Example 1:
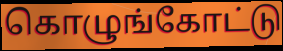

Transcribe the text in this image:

கொழுங்கோட்டு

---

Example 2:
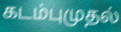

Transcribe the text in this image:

கடம்புமுதல்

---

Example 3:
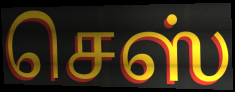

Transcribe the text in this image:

செஸ்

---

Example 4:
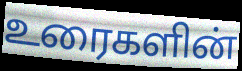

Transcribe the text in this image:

உரைகளின்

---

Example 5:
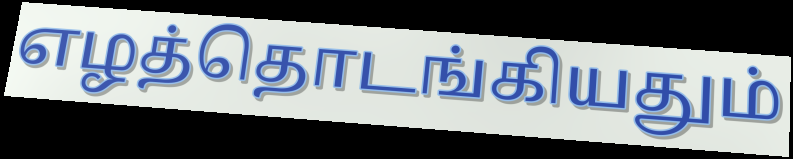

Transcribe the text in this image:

எழத்தொடங்கியதும்